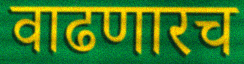
वाढणारच